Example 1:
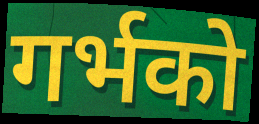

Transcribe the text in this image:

गर्भको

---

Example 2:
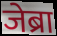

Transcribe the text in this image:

जेब्रा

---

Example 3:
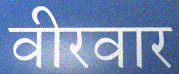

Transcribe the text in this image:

वीरवार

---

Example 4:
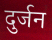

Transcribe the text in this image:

दुर्जन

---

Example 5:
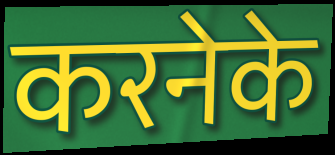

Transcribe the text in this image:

करनेके